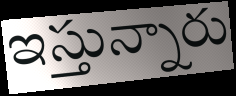
ఇస్తున్నారు